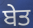
ਬੇਤ